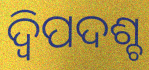
ଦ୍ବିପଦଶ୍ଚ